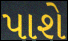
પાશે